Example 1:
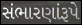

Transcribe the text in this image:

સંભારણાંરૂપે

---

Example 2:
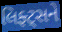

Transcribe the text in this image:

લિફ્ટ્સને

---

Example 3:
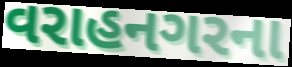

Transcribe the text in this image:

વરાહનગરના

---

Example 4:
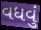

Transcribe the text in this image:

વધવું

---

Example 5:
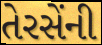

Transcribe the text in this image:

તેરસેંની